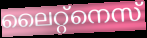
ലൈറ്റ്നെസ്